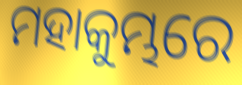
ମହାକୁମ୍ଭରେ